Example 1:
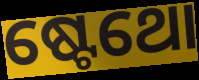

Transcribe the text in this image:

ଷ୍ଟେଥୋ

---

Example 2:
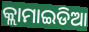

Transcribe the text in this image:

କ୍ଲାମାଇଡିଆ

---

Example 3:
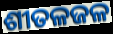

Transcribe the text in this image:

ଶୀତଳଜଳ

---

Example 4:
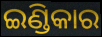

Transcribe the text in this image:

ଇଣ୍ଡିକାର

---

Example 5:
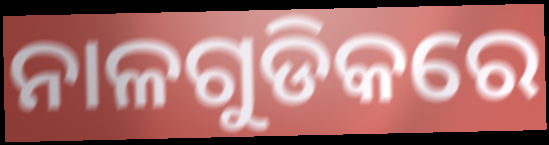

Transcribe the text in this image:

ନାଳଗୁଡିକରେ